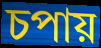
চপায়